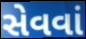
સેવવાં